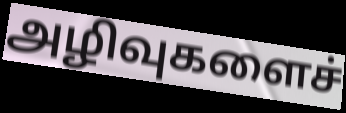
அழிவுகளைச்